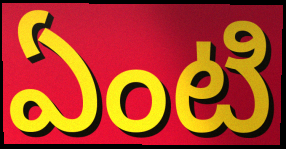
ఏంటి